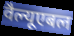
वैल्यूएबल